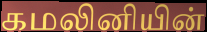
கமலினியின்